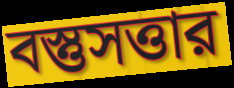
বস্তুসত্তার